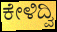
ಕೇಳಿದ್ವಿ